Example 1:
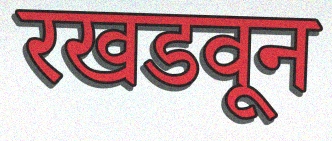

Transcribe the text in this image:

रखडवून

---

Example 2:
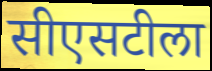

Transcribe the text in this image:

सीएसटीला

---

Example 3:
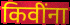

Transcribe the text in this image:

किवींना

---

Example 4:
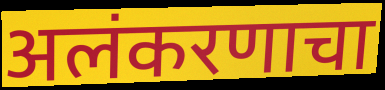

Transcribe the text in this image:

अलंकरणाचा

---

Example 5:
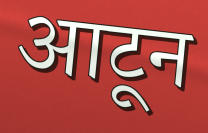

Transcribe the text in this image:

आटून